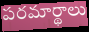
పరమార్థాలు